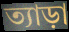
ত্যাড়া